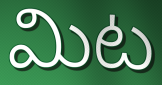
మిట